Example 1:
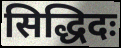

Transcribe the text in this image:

सिद्धिदः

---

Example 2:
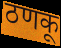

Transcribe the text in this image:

ठणकू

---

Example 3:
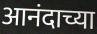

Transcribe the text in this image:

आनंदाच्या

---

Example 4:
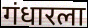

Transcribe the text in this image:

गंधारला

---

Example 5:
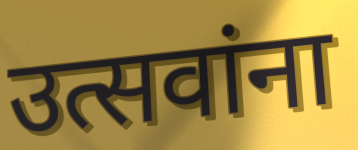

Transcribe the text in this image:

उत्सवांना